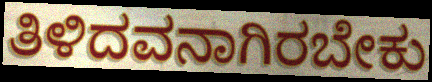
ತಿಳಿದವನಾಗಿರಬೇಕು